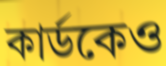
কার্ডকেও